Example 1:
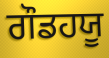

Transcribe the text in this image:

ਗੌਡਹਯੂ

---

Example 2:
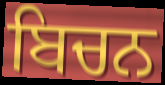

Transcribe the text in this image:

ਬਿਚਨ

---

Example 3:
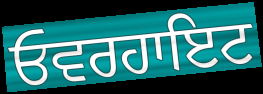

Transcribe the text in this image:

ਓਵਰਹਾਇਟ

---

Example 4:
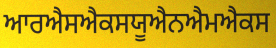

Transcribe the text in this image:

ਆਰਐਸਐਕਸਯੂਐਨਐਮਐਕਸ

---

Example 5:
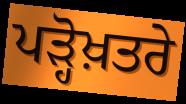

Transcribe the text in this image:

ਪੜ੍ਹੋਖ਼ਤਰੇ